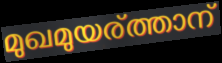
മുഖമുയര്ത്താന്